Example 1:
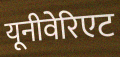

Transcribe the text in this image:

यूनीवेरिएट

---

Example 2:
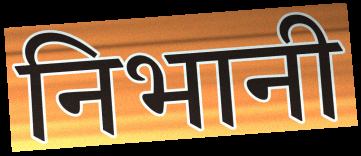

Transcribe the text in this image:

निभानी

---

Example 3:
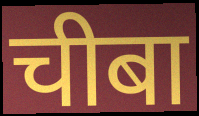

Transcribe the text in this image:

चीबा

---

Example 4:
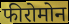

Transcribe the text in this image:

फीरोमोन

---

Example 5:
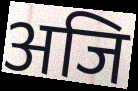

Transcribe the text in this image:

अजि